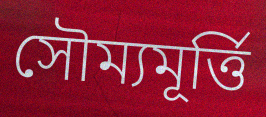
সৌম্যমূর্ত্তি